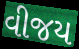
વીજય